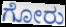
ಗೋರು